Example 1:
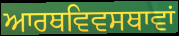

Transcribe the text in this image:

ਆਰਥਵਿਵਸਥਾਵਾਂ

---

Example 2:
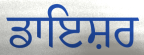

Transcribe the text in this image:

ਡਾਇਸ਼ਰ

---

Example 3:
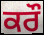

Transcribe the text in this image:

ਕਰੌ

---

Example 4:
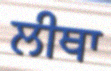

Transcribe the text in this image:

ਲੀਥਾ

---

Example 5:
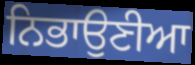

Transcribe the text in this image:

ਨਿਭਾਉਣੀਆ